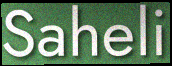
Saheli